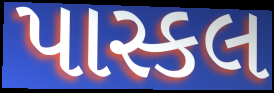
પાસ્કલ